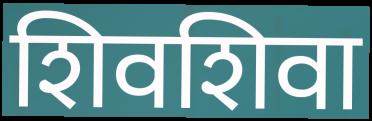
शिवशिवा